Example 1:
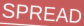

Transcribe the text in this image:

SPREAD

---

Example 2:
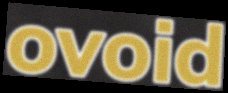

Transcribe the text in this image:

ovoid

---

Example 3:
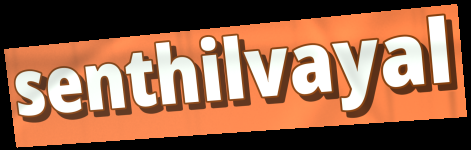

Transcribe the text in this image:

senthilvayal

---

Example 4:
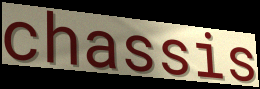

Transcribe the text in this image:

chassis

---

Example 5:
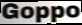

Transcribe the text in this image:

Goppo